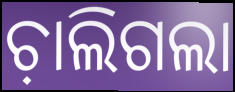
ଚ଼ାଲିଗଲା